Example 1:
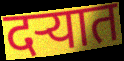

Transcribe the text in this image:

दऱ्यात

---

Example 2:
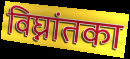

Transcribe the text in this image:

विघ्नांतका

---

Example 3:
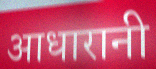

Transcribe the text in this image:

आधारानी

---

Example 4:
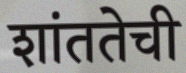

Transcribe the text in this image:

शांततेची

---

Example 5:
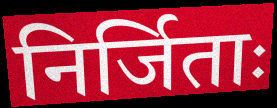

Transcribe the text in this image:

निर्जिताः